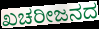
ಖಚರೀಜನದ